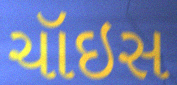
ચૉઇસ